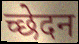
च्छेदन